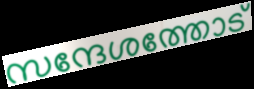
സന്ദേശത്തോട്